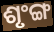
ଶୃଂଙ୍ଗ